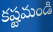
కష్టమండి